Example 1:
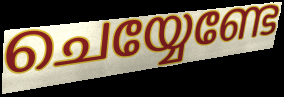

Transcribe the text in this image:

ചെയ്യേണ്ടേ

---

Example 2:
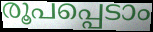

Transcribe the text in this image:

രൂപപ്പെടാം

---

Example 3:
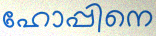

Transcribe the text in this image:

ഹോപ്പിനെ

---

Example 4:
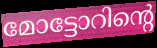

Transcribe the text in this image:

മോട്ടോറിന്റെ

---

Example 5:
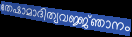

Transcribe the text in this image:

തേഷാമാദിത്യവജ്ജ്ഞാനം